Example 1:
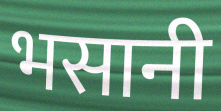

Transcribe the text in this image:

भसानी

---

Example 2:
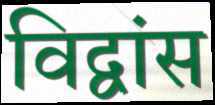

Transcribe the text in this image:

विद्वांस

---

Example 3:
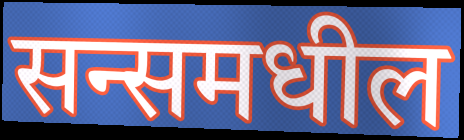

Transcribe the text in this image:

सन्समधील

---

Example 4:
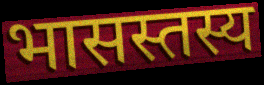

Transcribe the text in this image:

भासस्तस्य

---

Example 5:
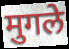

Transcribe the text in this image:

मुगले